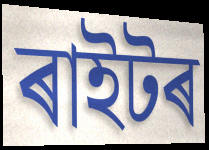
ৰাইটৰ